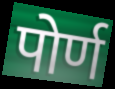
पोर्ण